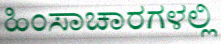
ಹಿಂಸಾಚಾರಗಳಲ್ಲಿ